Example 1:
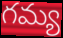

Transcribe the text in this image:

గమ్య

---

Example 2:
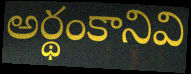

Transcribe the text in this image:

అర్థంకానివి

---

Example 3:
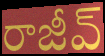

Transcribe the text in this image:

రాజీవ్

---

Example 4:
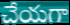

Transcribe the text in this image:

చేయగా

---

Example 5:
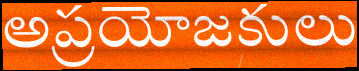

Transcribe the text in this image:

అప్రయోజకులు